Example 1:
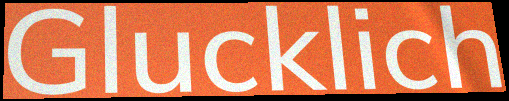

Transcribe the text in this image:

Glucklich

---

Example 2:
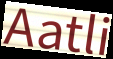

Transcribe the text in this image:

Aatli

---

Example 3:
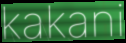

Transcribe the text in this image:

kakani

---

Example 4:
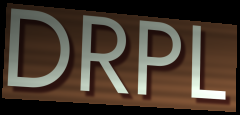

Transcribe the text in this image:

DRPL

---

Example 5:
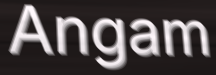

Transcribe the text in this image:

Angam